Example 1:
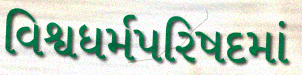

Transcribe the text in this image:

વિશ્વધર્મપરિષદમાં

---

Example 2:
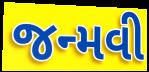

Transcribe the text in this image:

જન્મવી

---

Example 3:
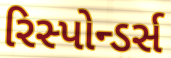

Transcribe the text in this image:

રિસ્પોન્ડર્સ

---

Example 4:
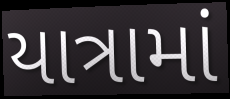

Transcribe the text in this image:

યાત્રામાં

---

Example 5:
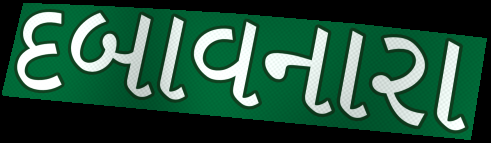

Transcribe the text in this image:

દબાવનારા